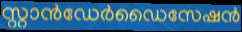
സ്റ്റാൻഡേർഡൈസേഷൻ